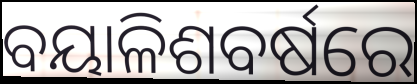
ବୟାଳିଶବର୍ଷରେ